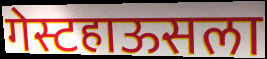
गेस्टहाऊसला